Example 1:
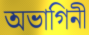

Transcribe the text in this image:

অভাগিনী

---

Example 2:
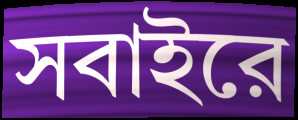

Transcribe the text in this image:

সবাইরে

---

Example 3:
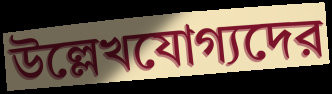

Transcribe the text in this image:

উল্লেখযোগ্যদের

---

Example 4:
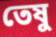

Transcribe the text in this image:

তেষু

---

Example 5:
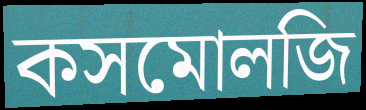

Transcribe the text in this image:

কসমোলজি